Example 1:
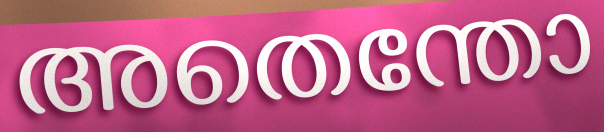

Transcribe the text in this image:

അതെന്തോ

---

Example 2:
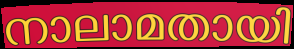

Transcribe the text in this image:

നാലാമതായി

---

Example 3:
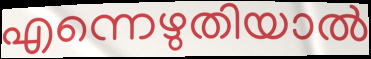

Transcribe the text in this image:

എന്നെഴുതിയാൽ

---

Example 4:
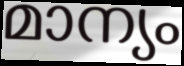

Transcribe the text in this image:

മാന്യം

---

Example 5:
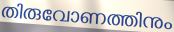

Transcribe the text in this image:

തിരുവോണത്തിനും